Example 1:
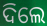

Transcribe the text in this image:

ଦିଲେ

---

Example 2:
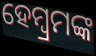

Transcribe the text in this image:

ହେମ୍ବ୍ରମଙ୍କ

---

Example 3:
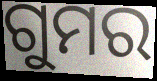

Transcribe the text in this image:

ଗୁମର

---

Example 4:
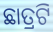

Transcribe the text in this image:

ଛାତ୍ରଟି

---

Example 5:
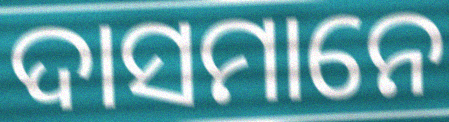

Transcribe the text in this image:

ଦାସମାନେ